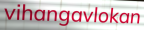
vihangavlokan